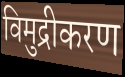
विमुद्रीकरण